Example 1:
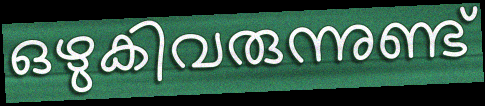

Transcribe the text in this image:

ഒഴുകിവരുന്നുണ്ട്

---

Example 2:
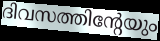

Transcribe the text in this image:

ദിവസത്തിന്റേയും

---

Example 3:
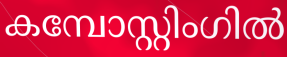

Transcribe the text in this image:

കമ്പോസ്റ്റിംഗിൽ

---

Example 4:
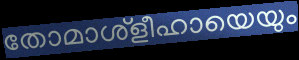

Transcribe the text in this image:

തോമാശ്ളീഹായെയും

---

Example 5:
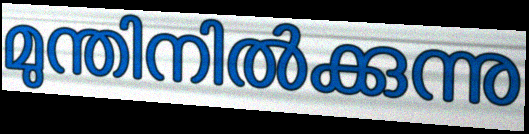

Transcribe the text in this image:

മുന്തിനിൽക്കുന്നു